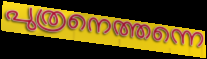
പുത്രനെത്തന്നെ